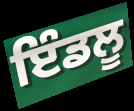
ਇੰਡਲੂ